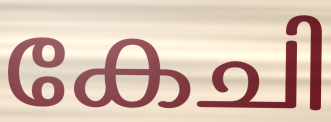
കേചി